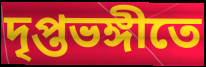
দৃপ্তভঙ্গীতে